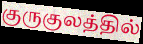
குருகுலத்தில்